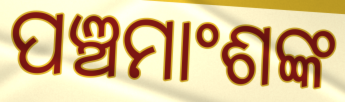
ପଞ୍ଚମାଂଶଙ୍କ